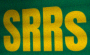
SRRs